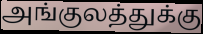
அங்குலத்துக்கு